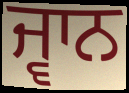
ਜ੍ਵਾਨ